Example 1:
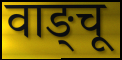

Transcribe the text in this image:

वाङ्चू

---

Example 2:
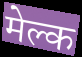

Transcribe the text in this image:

मेल्क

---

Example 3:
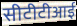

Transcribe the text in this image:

सीटीटीआई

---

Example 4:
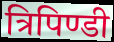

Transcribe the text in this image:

त्रिपिण्डी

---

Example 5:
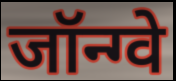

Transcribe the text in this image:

जॉन्ग्वे